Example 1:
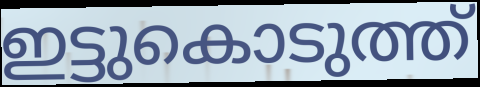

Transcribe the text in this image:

ഇട്ടുകൊടുത്ത്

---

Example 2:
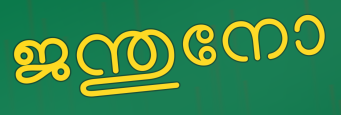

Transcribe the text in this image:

ജന്തുനോ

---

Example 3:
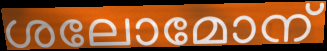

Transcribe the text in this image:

ശലോമോന്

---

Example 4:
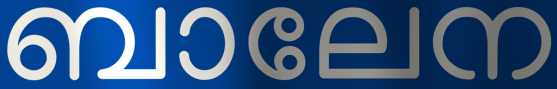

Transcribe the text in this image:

ബാലേന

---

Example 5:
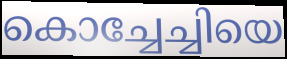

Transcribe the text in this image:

കൊച്ചേച്ചിയെ